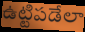
ఉట్టిపడేలా